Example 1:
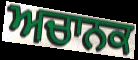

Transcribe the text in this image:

ਅਚਾਨਕ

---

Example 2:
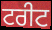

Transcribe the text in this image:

ਟਰੀਟ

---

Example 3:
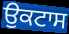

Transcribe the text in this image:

ਉਕਟਾਸ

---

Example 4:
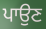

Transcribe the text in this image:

ਪਾਉਣ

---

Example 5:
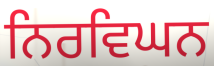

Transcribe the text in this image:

ਨਿਰਵਿਘਨ